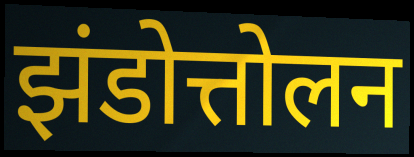
झंडोत्तोलन